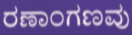
ರಣಾಂಗಣವು